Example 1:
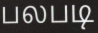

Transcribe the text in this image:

பலபடி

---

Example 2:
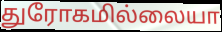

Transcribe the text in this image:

துரோகமில்லையா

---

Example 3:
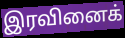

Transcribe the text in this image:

இரவினைக்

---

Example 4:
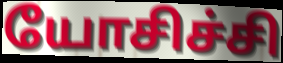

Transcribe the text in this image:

யோசிச்சி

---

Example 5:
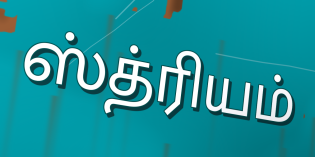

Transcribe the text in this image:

ஸ்த்ரியம்